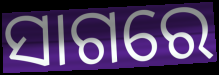
ସାଗରେ